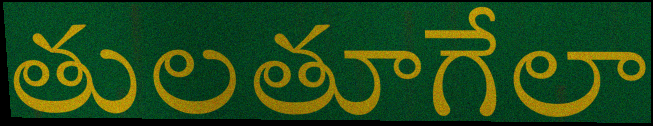
తులతూగేలా